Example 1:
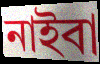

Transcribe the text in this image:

নাইবা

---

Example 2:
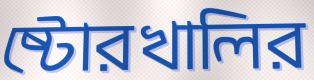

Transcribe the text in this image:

ষ্টোরখালির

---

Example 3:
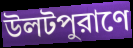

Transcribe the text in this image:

উলটপুরাণে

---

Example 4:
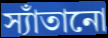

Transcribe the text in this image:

স্যাঁতানো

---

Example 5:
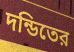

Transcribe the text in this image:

দন্ডিতের